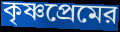
কৃষ্ণপ্রেমের